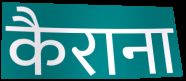
कैराना